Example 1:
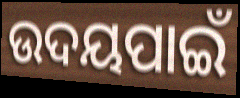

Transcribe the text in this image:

ଉଦୟପାଇଁ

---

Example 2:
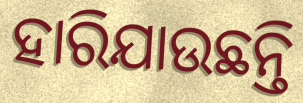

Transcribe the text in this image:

ହାରିଯାଉଛନ୍ତି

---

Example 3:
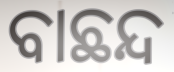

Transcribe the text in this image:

ବାଛନ୍ଦ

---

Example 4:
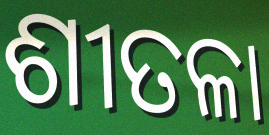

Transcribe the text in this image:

ଶୀତଳା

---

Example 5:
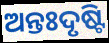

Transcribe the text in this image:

ଅନ୍ତଃଦୃଷ୍ଟି